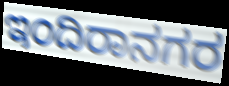
ಇಂದಿರಾನಗರ